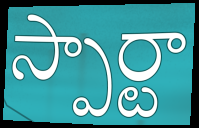
స్పార్టా